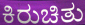
ಕಿರುಚಿತು